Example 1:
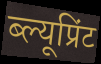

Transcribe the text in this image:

ब्ल्यूप्रिंट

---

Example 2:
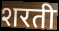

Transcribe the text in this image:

शरती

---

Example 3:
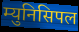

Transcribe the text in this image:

म्युनिसिपल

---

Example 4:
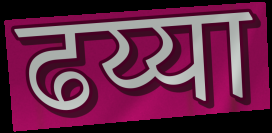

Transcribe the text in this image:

ढय्या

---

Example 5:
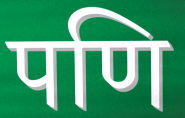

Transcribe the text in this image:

पणि